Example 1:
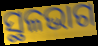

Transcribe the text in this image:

ସ୍ଥଳଭାଗ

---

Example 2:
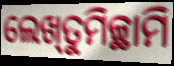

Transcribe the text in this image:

ଲେଖ୍‌ତୁମିଚ୍ଛାମି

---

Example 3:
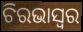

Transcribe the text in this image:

ଚିରଭାସ୍ଵର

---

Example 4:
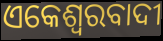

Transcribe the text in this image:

ଏକେଶ୍ଵରବାଦୀ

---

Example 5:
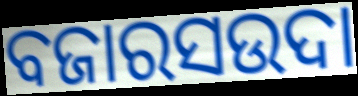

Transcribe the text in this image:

ବଜାରସଉଦା